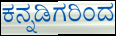
ಕನ್ನಡಿಗರಿಂದ